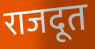
राजदूत